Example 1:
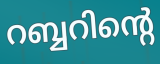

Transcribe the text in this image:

റബ്ബറിന്റെ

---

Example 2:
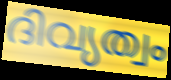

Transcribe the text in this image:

ദിവ്യത്വം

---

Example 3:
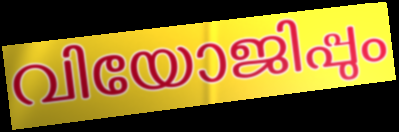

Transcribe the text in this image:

വിയോജിപ്പും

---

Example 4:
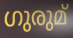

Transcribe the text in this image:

ഗുരുമ്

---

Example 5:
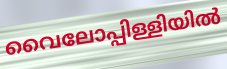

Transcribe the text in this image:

വൈലോപ്പിള്ളിയിൽ